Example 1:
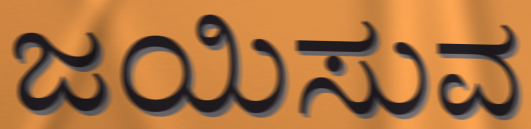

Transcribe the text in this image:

ಜಯಿಸುವ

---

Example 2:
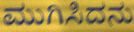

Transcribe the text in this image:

ಮುಗಿಸಿದನು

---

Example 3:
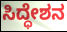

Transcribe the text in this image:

ಸಿದ್ಧೇಶನ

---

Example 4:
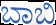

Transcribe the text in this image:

ಬಾಬಿ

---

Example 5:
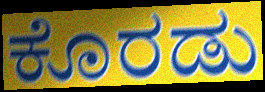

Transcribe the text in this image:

ಕೊರಡು